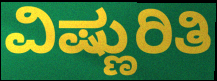
ವಿಷ್ಣುರಿತಿ